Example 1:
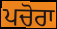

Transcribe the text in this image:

ਪਚੋਰਾ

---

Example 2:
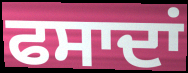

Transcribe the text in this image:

ਫਸਾਦਾਂ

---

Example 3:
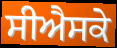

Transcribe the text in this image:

ਸੀਐਸਕੇ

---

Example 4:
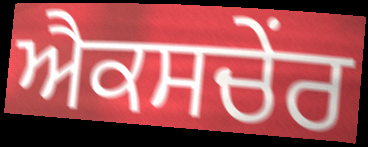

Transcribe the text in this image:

ਐਕਸਚੇਂਰ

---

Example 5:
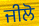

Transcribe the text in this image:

ਜੀਲੋ